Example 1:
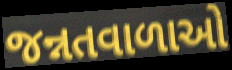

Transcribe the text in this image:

જન્નતવાળાઓ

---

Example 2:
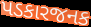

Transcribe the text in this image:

પડકારજનક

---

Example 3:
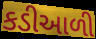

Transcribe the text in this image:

કડીઆળી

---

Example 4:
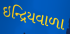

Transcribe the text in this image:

ઇન્દ્રિયવાળા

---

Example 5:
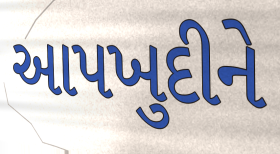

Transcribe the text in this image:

આપખુદીને